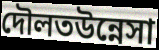
দৌলতউন্নেসা